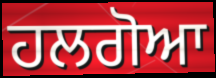
ਹਲਗੋਆ